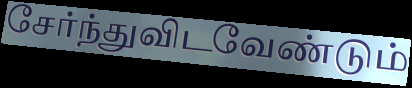
சேர்ந்துவிடவேண்டும்